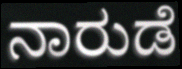
ನಾರುಡೆ